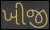
ખીજી